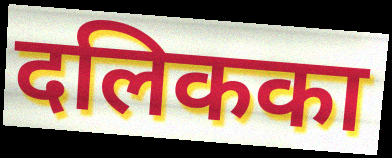
दलिकका